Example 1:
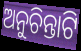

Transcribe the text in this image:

ଅନୁଚିନ୍ତାଟି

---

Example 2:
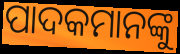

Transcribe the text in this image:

ପାଦକମାନଙ୍କୁ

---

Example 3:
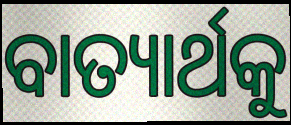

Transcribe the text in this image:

ବାତ୍ୟାର୍ଥକୁ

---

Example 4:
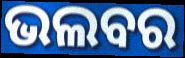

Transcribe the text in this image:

ଭଲବର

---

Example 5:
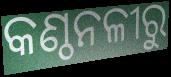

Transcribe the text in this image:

କଣ୍ଠନଳୀରୁ